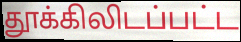
தூக்கிலிடப்பட்ட